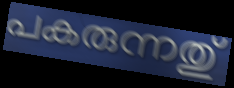
പകരുന്നതു്